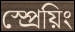
স্প্রেয়িং